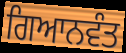
ਗਿਆਨਵੰਤ